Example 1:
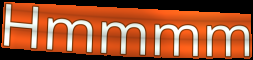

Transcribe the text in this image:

Hmmmm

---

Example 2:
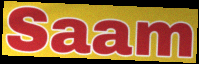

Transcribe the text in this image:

Saam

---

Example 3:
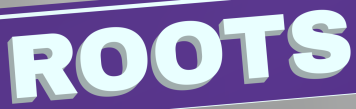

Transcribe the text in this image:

ROOTS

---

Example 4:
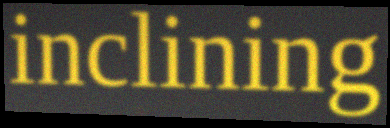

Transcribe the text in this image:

inclining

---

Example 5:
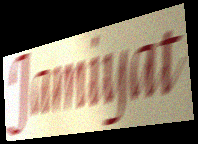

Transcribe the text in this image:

Jamiyat